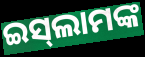
ଇସ୍‌ଲାମଙ୍କ